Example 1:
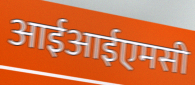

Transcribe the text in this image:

आईआईएमसी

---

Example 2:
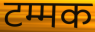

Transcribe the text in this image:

टम्मक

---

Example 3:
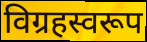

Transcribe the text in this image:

विग्रहस्वरूप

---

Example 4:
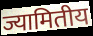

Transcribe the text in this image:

ज्यामितीय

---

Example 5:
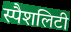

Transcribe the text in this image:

स्पैशलिटी